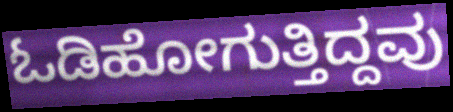
ಓಡಿಹೋಗುತ್ತಿದ್ದವು